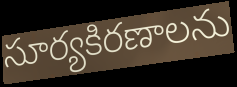
సూర్యకిరణాలను